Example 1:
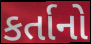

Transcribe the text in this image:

કર્તાનો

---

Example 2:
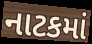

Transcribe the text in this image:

નાટકમાં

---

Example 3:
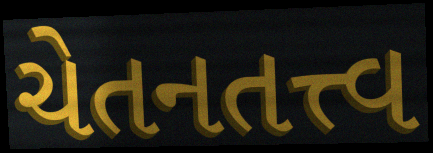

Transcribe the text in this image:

ચેતનતત્ત્વ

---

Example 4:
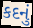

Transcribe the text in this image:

કદનું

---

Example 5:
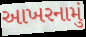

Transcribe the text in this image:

આખરનામું